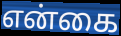
என்கை